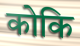
कोकि